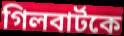
গিলবার্টকে